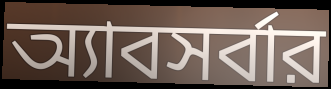
অ্যাবসর্বার